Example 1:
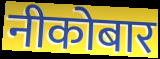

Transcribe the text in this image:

नीकोबार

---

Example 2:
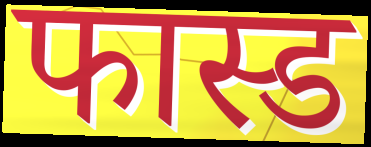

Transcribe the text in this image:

फास्ड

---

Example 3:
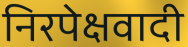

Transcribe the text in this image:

निरपेक्षवादी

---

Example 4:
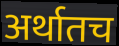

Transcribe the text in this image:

अर्थातच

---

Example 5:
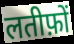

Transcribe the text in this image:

लतीफ़ों